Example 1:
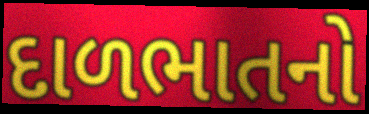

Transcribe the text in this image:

દાળભાતનો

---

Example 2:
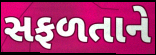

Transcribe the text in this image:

સફળતાને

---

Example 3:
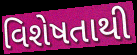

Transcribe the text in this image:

વિશેષતાથી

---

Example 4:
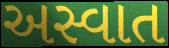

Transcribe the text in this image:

અસ્વાત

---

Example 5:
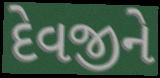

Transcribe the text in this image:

દેવજીને